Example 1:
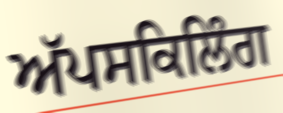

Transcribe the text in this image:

ਅੱਪਸਕਿਲਿੰਗ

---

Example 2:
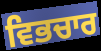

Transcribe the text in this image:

ਵਿਭਚਾਰ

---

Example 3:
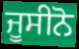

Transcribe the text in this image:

ਜੂਸੀਨੋ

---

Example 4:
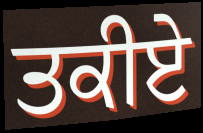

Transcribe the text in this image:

ਤਕੀਏ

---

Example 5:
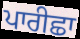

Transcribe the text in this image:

ਪਾਰੀਛਾ